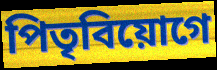
পিতৃবিয়োগে